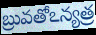
బ్రువతోఽన్యత్ర